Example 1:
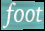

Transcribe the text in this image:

foot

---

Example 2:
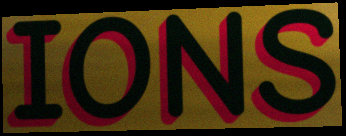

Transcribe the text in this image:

IONS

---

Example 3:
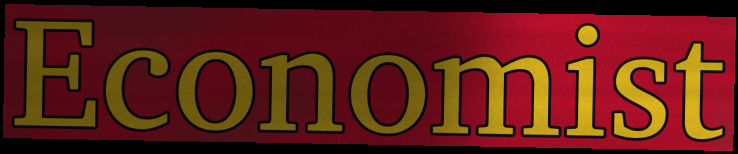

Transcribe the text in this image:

Economist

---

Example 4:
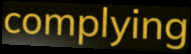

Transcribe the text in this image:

complying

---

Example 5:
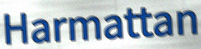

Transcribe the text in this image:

Harmattan